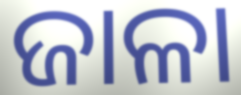
ଜାଳା